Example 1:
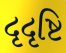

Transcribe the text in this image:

દૃદૃષ્ટિ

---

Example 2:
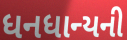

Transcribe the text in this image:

ધનધાન્યની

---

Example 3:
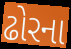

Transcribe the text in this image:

ઢોરના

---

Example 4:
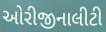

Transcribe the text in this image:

ઓરીજીનાલીટી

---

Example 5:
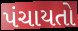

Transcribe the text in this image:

પંચાયતો